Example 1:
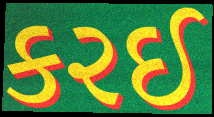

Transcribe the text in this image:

કરઈ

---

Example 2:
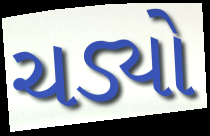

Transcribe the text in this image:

ચડ્યો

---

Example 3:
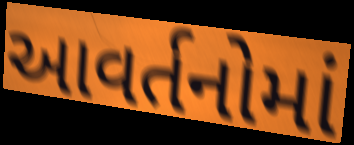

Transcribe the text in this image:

આવર્તનોમાં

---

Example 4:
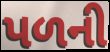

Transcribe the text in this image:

પળની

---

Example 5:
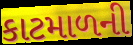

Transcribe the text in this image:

કાટમાળની